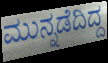
ಮುನ್ನಡೆದಿದ್ದ